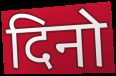
दिनो